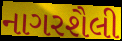
નાગરશૈલી